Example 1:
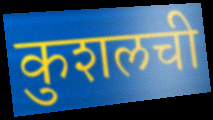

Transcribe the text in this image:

कुशलची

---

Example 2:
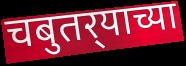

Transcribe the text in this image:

चबुतर्‍याच्या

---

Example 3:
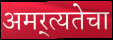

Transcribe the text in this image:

अमर्त्यतेचा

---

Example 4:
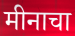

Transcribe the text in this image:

मीनाचा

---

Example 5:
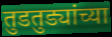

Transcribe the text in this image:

तुडतुड्यांच्या